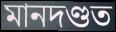
মানদণ্ডত